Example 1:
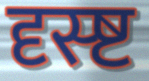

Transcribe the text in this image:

दृस्ष्ट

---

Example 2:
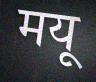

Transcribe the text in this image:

मयू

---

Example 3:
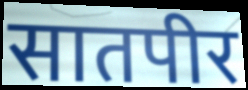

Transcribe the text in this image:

सातपीर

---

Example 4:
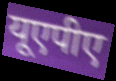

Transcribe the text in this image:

यूएपीए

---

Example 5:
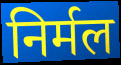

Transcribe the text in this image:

निर्मल